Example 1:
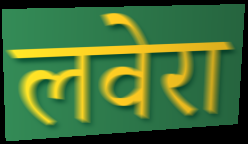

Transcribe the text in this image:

लवेरा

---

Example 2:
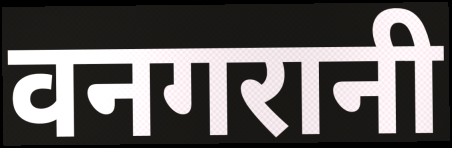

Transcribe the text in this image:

वनगरानी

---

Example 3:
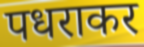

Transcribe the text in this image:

पधराकर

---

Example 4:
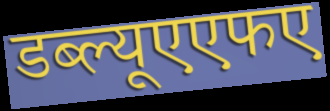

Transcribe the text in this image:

डब्ल्यूएएफए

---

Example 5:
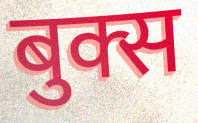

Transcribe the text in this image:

बुक्‍स